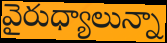
వైరుధ్యాలున్నా